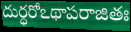
దుర్ధరోఽథాపరాజితః